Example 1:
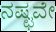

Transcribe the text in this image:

ನಷ್ಟವೇ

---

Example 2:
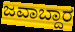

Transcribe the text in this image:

ಜವಾಬ್ದಾರ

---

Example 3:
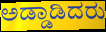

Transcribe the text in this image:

ಅಡ್ಡಾಡಿದರು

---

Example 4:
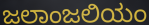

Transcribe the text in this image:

ಜಲಾಂಜಲಿಯಂ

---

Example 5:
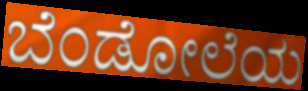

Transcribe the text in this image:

ಬೆಂಡೋಲೆಯ